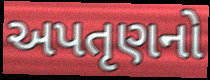
અપતૃણનો